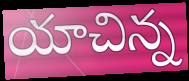
యాచిన్న